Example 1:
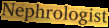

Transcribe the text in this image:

Nephrologist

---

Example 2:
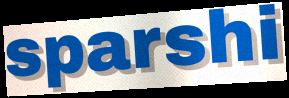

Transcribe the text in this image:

sparshi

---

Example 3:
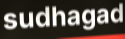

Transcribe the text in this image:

sudhagad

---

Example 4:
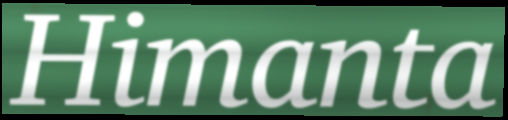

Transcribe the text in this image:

Himanta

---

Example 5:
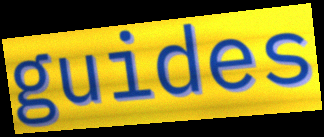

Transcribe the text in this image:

guides